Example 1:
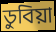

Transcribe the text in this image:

ডুবিয়া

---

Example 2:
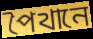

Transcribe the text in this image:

পৈথানে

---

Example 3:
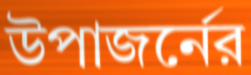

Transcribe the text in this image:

উপাজর্নের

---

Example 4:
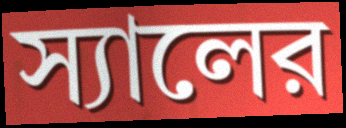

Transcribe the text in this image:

স্যালের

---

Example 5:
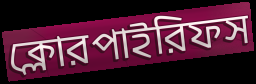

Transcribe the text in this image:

ক্লোরপাইরিফস